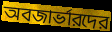
অবজার্ভারদের